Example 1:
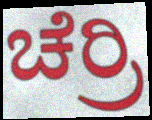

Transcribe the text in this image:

ಚೆರ್ರಿ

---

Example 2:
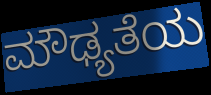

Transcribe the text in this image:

ಮೌಢ್ಯತೆಯ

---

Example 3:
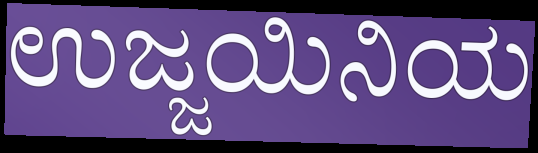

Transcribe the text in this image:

ಉಜ್ಜಯಿನಿಯ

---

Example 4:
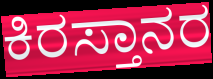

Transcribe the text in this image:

ಕಿರಸ್ತಾನರ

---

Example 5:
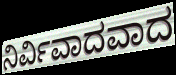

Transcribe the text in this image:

ನಿರ್ವಿವಾದವಾದ